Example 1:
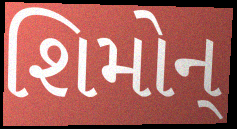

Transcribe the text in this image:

શિમોન્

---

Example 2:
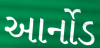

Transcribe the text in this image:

આર્નોડ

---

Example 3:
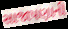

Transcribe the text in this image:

સાજાપણાની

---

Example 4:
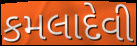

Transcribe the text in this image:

કમલાદેવી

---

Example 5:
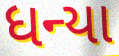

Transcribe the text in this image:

ધન્યા